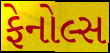
ફેનોલ્સ